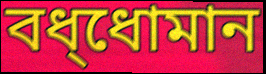
বধ্ধোমান